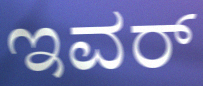
ಇವರ್